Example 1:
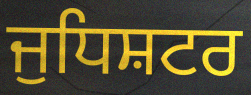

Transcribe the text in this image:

ਜੁਧਿਸ਼ਟਰ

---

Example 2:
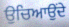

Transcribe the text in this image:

ਉਚਿਆਉਂਦੇ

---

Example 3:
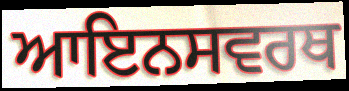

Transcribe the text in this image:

ਆਇਨਸਵਰਥ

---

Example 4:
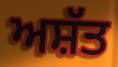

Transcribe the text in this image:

ਅਸ਼ੱਤ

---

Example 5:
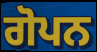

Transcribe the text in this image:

ਗੋਪਨ